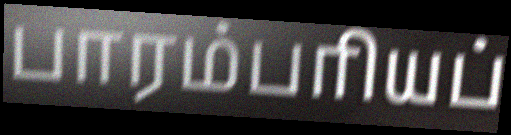
பாரம்பரியப்